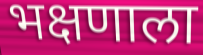
भक्षणाला